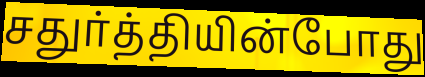
சதுர்த்தியின்போது